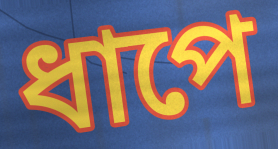
ধাপে